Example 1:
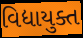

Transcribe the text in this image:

વિદ્યાયુક્ત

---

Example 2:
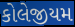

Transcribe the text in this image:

કોલેજીયમ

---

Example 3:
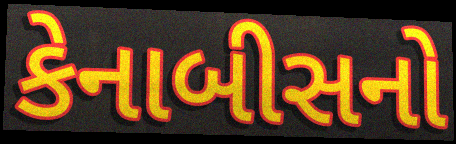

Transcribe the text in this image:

કેનાબીસનો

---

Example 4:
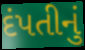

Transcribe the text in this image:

દંપતીનું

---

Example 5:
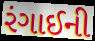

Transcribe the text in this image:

રંગાઈની